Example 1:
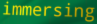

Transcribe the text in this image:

immersing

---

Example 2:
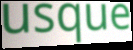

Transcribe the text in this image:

usque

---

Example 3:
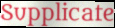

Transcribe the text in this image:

Supplicate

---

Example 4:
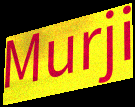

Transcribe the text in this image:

Murji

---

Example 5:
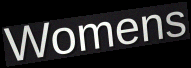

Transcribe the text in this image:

Womens